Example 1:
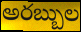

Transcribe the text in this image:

అరబ్బుల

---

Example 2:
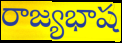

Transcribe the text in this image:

రాజ్యభాష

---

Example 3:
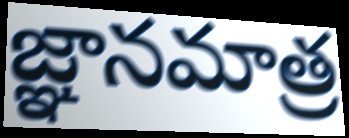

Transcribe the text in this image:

జ్ఞానమాత్ర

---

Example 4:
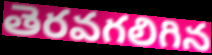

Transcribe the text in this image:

తెరవగలిగిన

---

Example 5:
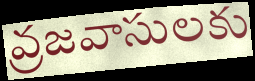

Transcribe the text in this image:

వ్రజవాసులకు